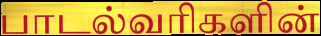
பாடல்வரிகளின்